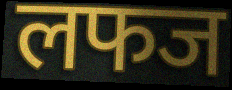
लफज